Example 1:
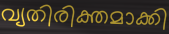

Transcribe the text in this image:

വ്യതിരിക്തമാക്കി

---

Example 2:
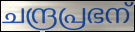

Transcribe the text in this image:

ചന്ദ്രപ്രഭന്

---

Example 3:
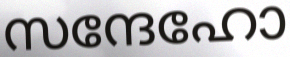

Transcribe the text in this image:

സന്ദേഹോ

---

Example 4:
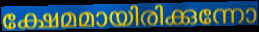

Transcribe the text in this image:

ക്ഷേമമായിരിക്കുന്നോ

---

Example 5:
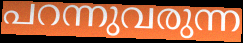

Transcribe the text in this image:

പറന്നുവരുന്ന